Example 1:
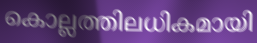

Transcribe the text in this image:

കൊല്ലത്തിലധികമായി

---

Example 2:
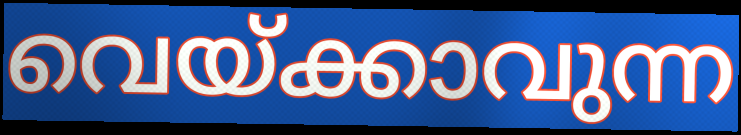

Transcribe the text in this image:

വെയ്ക്കാവുന്ന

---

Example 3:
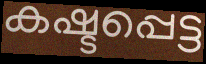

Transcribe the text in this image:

കഷ്ടപ്പെട്ട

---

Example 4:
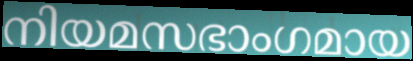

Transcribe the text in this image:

നിയമസഭാംഗമായ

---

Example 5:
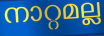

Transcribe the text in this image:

നാറ്റമല്ല